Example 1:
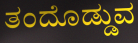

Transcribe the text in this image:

ತಂದೊಡ್ಡುವ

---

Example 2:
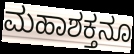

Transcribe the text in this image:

ಮಹಾಶಕ್ತನೂ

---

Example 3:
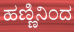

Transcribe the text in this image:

ಹಣ್ಣಿನಿಂದ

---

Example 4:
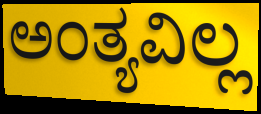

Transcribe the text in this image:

ಅಂತ್ಯವಿಲ್ಲ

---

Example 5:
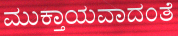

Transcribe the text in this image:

ಮುಕ್ತಾಯವಾದಂತೆ